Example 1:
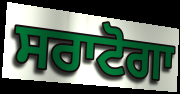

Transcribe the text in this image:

ਸਰਾਟੋਗਾ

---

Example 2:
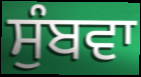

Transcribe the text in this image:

ਸੁੰਬਵਾ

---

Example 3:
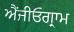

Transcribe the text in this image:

ਐਂਜੀਓਗ੍ਰਾਮ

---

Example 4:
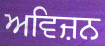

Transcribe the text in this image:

ਅਵਿਜ਼ਨ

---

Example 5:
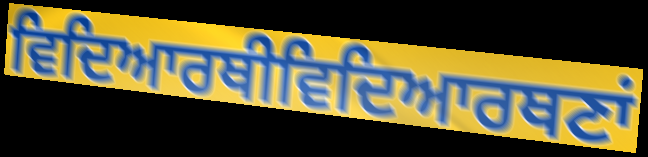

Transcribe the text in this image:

ਵਿਦਿਆਰਥੀਵਿਦਿਆਰਥਣਾਂ